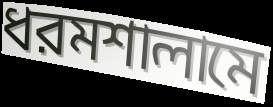
ধরমশালামে